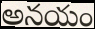
అనయం